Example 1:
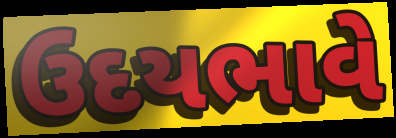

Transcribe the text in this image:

ઉદયભાવે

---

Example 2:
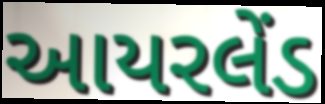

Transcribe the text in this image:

આયરલેંડ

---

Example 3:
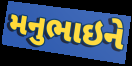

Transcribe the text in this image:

મનુભાઇને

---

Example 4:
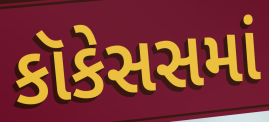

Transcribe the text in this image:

કૉકેસસમાં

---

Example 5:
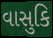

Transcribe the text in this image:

વાસુકિ